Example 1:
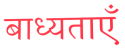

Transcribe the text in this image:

बाध्यताएँ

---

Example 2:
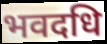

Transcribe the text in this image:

भवदधि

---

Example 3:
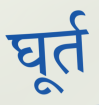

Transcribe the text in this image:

घूर्त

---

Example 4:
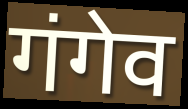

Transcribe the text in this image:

गंगेव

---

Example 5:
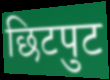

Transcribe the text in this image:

छिटपुट